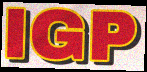
IGP